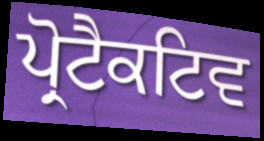
ਪ੍ਰੋਟੈਕਟਿਵ